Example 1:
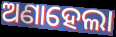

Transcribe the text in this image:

ଅଣାହେଲା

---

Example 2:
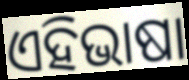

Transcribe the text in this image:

ଏହିଭାଷା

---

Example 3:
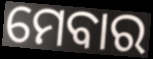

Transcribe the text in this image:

ମେବାର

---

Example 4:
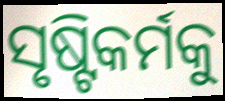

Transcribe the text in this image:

ସୃଷ୍ଟିକର୍ମକୁ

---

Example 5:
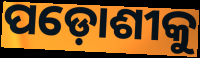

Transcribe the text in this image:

ପଡ଼ୋଶୀକୁ